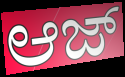
ಆಜ್